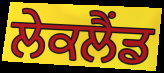
ਲੇਕਲੈਂਡ